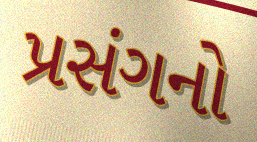
પ્રસંગનો